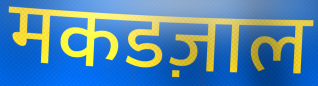
मकडज़ाल